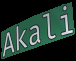
Akali